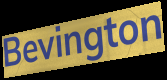
Bevington